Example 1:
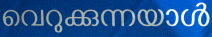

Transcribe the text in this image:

വെറുക്കുന്നയാൾ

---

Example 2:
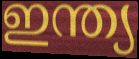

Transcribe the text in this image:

ഇന്ത്യ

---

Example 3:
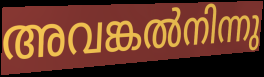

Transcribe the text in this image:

അവങ്കൽനിന്നു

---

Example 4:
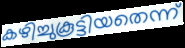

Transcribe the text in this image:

കഴിച്ചുകൂട്ടിയതെന്ന്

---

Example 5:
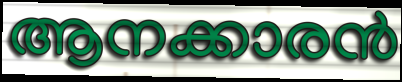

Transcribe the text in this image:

ആനക്കാരൻ